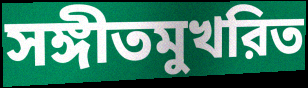
সঙ্গীতমুখরিত